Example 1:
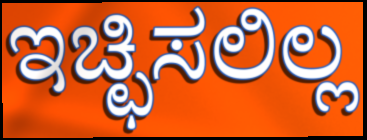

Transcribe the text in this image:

ಇಚ್ಛಿಸಲಿಲ್ಲ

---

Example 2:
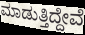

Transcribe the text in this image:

ಮಾಡುತ್ತಿದ್ದೇವೆ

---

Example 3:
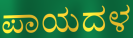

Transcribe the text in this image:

ಪಾಯದಳ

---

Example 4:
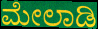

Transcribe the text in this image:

ಮೇಲಾಡಿ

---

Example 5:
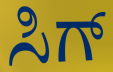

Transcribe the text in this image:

ಸಿಗ್